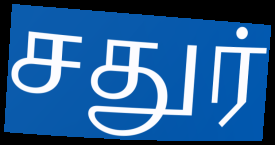
சதுர்